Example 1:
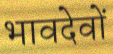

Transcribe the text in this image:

भावदेवों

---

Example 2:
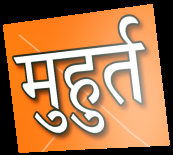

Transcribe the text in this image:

मुहुर्त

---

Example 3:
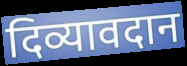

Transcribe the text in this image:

दिव्यावदान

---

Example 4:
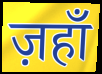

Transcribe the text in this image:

ज़हाँ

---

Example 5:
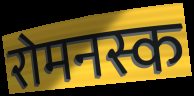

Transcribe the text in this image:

रोमनस्क